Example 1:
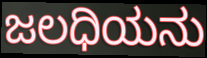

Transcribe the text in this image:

ಜಲಧಿಯನು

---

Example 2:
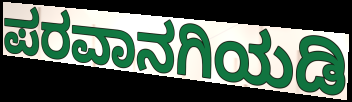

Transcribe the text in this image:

ಪರವಾನಗಿಯಡಿ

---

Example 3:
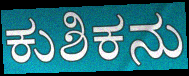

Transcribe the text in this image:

ಕುಶಿಕನು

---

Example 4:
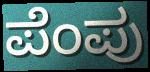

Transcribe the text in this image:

ಪೆಂಪು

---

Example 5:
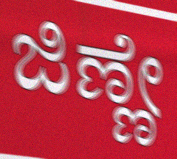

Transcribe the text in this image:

ಜಿಣ್ಣೇ